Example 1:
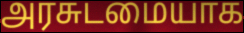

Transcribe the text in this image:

அரசுடமையாக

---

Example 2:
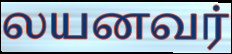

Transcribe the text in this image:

லயனவர்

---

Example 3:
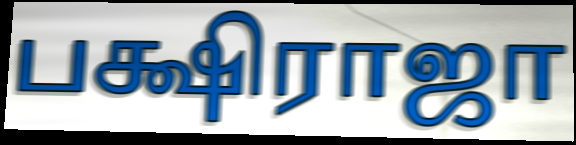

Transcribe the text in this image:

பக்ஷிராஜா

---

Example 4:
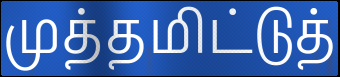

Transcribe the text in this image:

முத்தமிட்டுத்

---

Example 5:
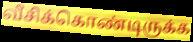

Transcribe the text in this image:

வீசிக்கொண்டிருக்க